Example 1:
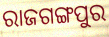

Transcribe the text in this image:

ରାଜଗଙ୍ଗପୁର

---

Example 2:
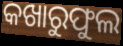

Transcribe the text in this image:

କଖାରୁଫୁଲ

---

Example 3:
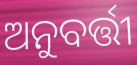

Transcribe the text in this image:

ଅନୁବର୍ତ୍ତୀ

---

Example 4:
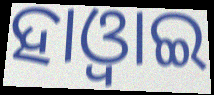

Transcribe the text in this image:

ହାଓ୍ୱାଇ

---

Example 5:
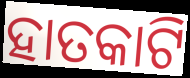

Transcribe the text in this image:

ହାତକାଟି